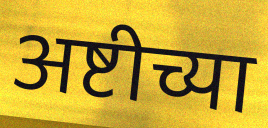
अष्टीच्या